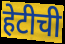
हेटीची